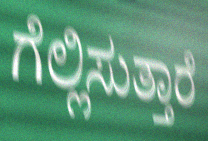
ಗೆಲ್ಲಿಸುತ್ತಾರೆ